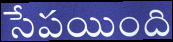
సేపయింది